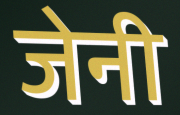
जेनी